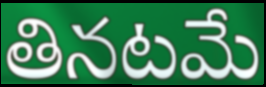
తినటమే